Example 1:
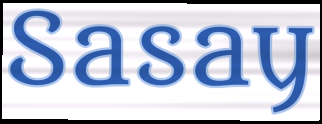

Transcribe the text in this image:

Sasay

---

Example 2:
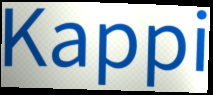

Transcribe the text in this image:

Kappi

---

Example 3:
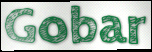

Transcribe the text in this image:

Gobar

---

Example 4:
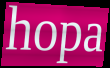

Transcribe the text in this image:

hopa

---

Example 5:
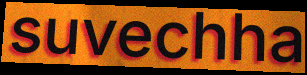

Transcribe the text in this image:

suvechha